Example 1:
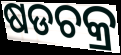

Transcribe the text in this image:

ଷଡଚକ୍ର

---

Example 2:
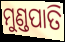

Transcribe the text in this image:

ମୁଣ୍ଡପାତି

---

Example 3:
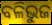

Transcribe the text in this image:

ବଳିଭୁଜ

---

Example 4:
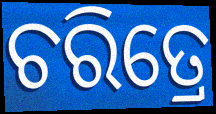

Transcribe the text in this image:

ଚରିତ୍ରେ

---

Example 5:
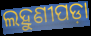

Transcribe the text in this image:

ଲହୁଣୀପଡ଼ା